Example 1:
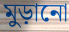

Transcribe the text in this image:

মুড়ানো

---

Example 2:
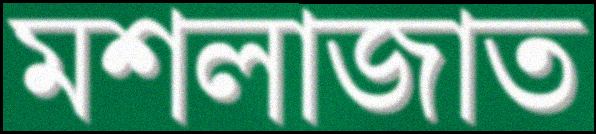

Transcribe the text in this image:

মশলাজাত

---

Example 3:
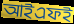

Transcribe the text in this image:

আইএফই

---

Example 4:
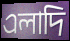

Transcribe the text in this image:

এলাদি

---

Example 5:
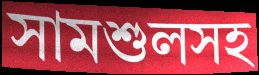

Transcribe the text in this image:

সামশুলসহ